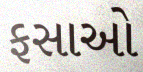
ફસાઓ